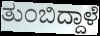
ತುಂಬಿದ್ದಾಳೆ